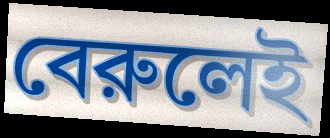
বেরুলেই